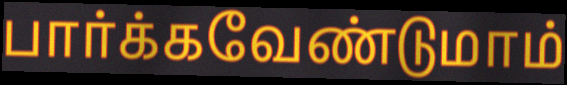
பார்க்கவேண்டுமாம்